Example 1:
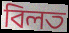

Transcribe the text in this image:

বিলত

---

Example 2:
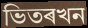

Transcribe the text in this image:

ভিতৰখন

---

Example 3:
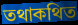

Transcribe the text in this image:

তথাকথিত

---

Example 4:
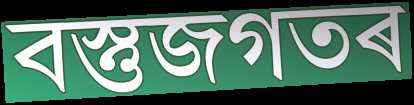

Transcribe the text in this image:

বস্তুজগতৰ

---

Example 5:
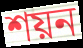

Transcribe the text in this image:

শয়ন